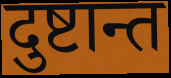
दुष्टान्त